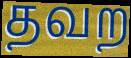
தவற